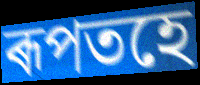
ৰূপতহে